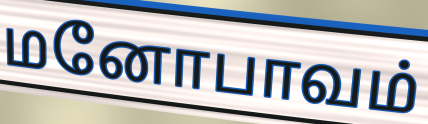
மனோபாவம்